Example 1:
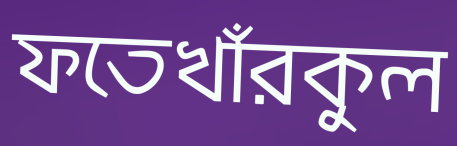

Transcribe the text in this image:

ফতেখাঁরকুল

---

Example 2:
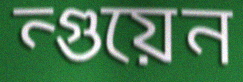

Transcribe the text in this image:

ন্গুয়েন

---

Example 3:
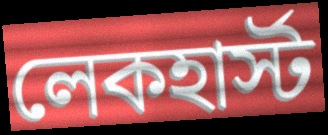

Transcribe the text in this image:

লেকহার্স্ট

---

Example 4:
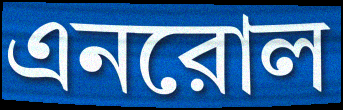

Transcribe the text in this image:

এনরোল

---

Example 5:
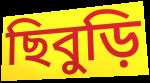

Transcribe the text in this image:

ছিবুড়ি